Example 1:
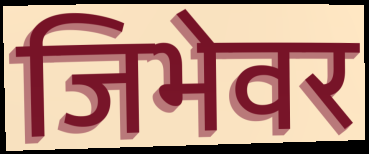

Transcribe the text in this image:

जिभेवर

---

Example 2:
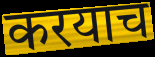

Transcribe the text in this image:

करयाच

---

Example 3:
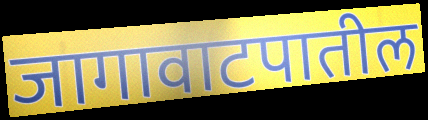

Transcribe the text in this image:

जागावाटपातील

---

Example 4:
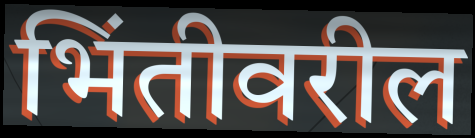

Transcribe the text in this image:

भिंतीवरील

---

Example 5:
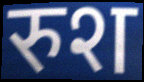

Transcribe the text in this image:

रुश